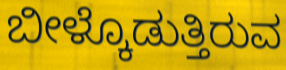
ಬೀಳ್ಕೊಡುತ್ತಿರುವ